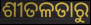
ଶୀତଳତାରୁ